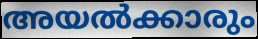
അയൽക്കാരും